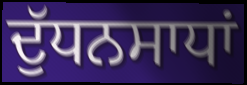
ਦੁੱਧਨਸਾਧਾਂ